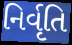
નિર્વૃતિ